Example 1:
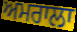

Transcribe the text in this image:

ਅਮਰਾਲਾ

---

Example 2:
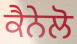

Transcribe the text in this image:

ਕੈਨੇਲੋ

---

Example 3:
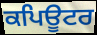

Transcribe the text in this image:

ਕਪਿਊਟਰ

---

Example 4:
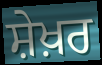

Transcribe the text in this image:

ਸ਼ੇਖ਼ਰ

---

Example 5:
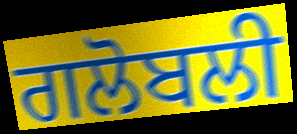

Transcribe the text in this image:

ਗਲੋਬਲੀ